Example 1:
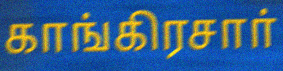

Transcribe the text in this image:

காங்கிரசார்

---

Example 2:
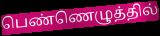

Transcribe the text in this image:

பெண்ணெழுத்தில்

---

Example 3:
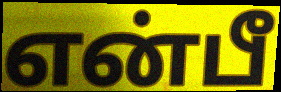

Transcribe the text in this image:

என்பீ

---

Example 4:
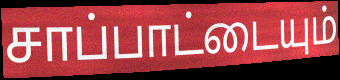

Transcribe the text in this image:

சாப்பாட்டையும்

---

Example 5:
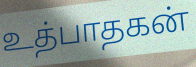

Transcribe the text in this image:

உத்பாதகன்